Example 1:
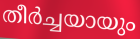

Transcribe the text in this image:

തീർച്ചയായും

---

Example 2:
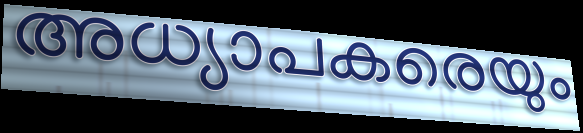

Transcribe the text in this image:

അധ്യാപകരെയും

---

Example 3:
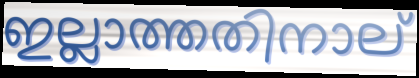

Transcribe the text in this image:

ഇല്ലാത്തതിനാല്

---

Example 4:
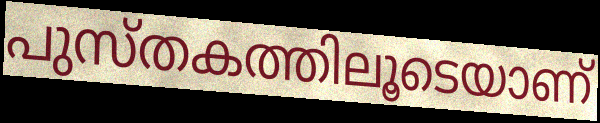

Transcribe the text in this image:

പുസ്തകത്തിലൂടെയാണ്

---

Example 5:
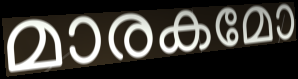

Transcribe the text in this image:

മാരകമോ